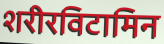
शरीरविटामिन